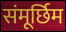
संमूर्छिम